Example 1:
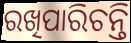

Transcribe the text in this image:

ରଖିପାରିଚନ୍ତି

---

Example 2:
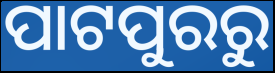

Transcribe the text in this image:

ପାଟପୁରରୁ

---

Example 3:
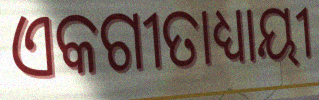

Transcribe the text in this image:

ଏକଗୀତାଧ୍ୟାୟୀ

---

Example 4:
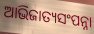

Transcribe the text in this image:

ଆଭିଜାତ୍ୟସଂପନ୍ନା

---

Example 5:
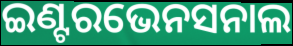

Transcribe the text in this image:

ଇଣ୍ଟରଭେନସନାଲ